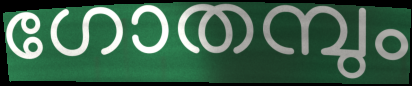
ഗോതമ്പും